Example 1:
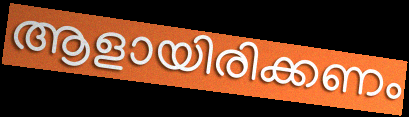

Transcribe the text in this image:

ആളായിരിക്കണം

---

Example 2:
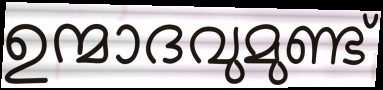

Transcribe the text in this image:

ഉന്മാദവുമുണ്ട്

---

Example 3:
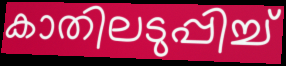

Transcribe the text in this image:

കാതിലടുപ്പിച്ച്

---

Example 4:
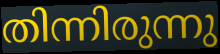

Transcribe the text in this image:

തിന്നിരുന്നു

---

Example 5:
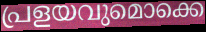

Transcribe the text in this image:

പ്രളയവുമൊക്കെ